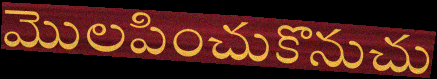
మొలపించుకొనుచు